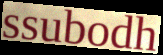
ssubodh